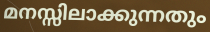
മനസ്സിലാക്കുന്നതും